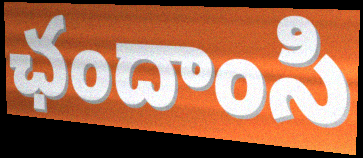
ఛందాంసి